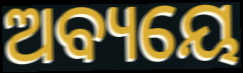
ଅବ୍ୟୟେ